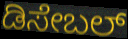
ಡಿಸೇಬಲ್